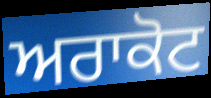
ਅਰਾਕੋਟ